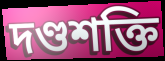
দণ্ডশক্তি